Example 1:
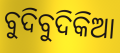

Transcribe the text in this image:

ବୁଦିବୁଦିକିଆ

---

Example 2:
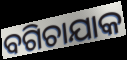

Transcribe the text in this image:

ବଗିଚାଯାକ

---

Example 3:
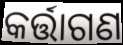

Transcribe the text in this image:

କର୍ତ୍ତାଗଣ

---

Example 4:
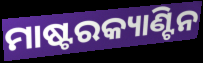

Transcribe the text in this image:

ମାଷ୍ଟରକ୍ୟାଣ୍ଟିନ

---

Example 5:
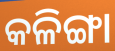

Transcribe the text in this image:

କଳିଙ୍ଗା